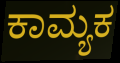
ಕಾಮ್ಯಕ